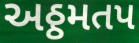
અઠ્ઠમતપ